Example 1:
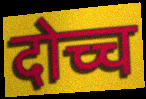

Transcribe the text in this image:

दोच्च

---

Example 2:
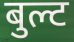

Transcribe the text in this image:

बुल्ट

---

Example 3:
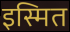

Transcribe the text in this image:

इस्मित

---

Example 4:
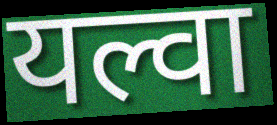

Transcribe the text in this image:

यल्वा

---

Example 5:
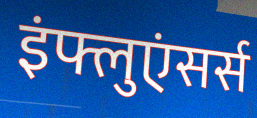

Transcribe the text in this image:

इंफ्लुएंसर्स